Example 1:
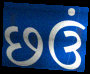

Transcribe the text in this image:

છઉં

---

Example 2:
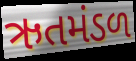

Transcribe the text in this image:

ઋતમંડળ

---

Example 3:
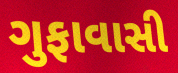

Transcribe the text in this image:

ગુફાવાસી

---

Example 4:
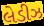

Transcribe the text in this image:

લેડીઝ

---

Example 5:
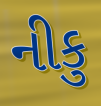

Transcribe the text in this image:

નીકુ